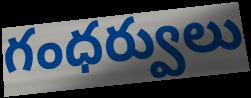
గంధర్వులు